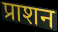
प्राशन